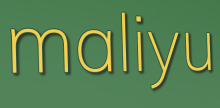
maliyu